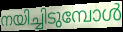
നയിച്ചിടുമ്പോൾ